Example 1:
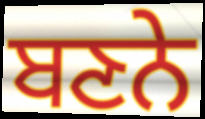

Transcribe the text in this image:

ਬਣਨੇ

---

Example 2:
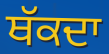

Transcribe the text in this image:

ਥੱਕਦਾ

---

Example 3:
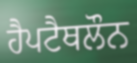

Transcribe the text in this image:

ਹੈਪਟੈਥਲੌਨ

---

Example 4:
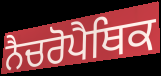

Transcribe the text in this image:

ਨੈਚਰੋਪੈਥਿਕ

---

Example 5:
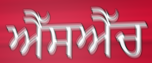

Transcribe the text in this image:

ਐੱਸਐੱਚ